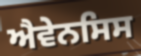
ਐਵੇਨਸਿਸ